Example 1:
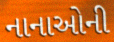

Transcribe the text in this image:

નાનાઓની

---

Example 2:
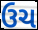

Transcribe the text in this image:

ઉચ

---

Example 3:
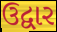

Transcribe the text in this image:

ઉદ્વાર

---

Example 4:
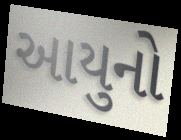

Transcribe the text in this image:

આયુનો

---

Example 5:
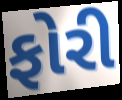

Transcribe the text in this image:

ફોરી